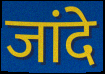
जांदे